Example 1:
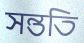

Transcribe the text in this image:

সন্ততি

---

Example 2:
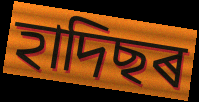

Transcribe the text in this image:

হাদিছৰ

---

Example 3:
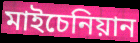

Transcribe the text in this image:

মাইচেনিয়ান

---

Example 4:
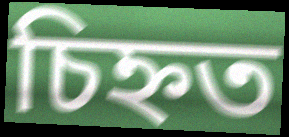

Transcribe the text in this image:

চিহ্নত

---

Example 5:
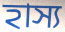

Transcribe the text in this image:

হাস্য